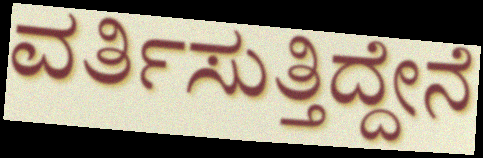
ವರ್ತಿಸುತ್ತಿದ್ದೇನೆ